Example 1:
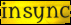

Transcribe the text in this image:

insync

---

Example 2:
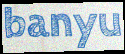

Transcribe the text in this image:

banyu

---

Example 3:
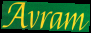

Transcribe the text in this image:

Avram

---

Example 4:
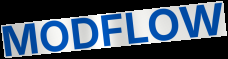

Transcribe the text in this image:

MODFLOW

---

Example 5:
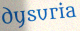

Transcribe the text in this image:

dysuria